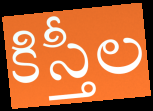
కిస్తీల